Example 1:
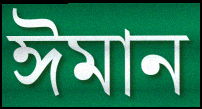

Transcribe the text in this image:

ঈমান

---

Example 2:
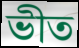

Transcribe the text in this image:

ভীত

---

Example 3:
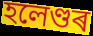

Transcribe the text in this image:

হলেণ্ডৰ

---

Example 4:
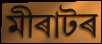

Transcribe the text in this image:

মীৰাটৰ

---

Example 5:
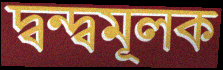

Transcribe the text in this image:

দ্বন্দ্বমূলক